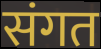
संगत